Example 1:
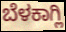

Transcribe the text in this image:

ಬೆಳಕಾಗ್ಲಿ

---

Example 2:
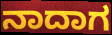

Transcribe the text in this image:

ನಾದಾಗ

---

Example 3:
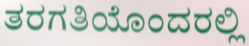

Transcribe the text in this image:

ತರಗತಿಯೊಂದರಲ್ಲಿ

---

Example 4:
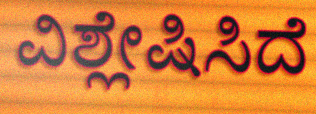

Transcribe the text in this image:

ವಿಶ್ಲೇಷಿಸಿದೆ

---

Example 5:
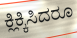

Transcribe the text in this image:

ಕ್ಲಿಕ್ಕಿಸಿದರೂ